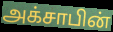
அக்சாபின்